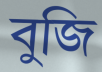
বুজি